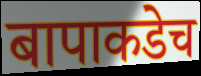
बापाकडेच